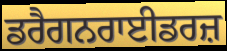
ਡਰੈਗਨਰਾਈਡਰਜ਼